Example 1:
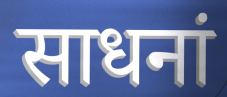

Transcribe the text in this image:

साधनां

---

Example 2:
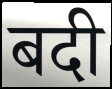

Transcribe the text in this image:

बदी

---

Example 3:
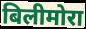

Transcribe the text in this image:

बिलीमोरा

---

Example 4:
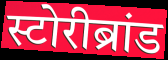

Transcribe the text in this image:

स्टोरीब्रांड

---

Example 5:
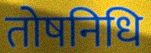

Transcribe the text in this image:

तोषनिधि